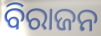
ବିରାଜନ